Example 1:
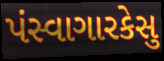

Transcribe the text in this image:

પંસ્વાગારકેસુ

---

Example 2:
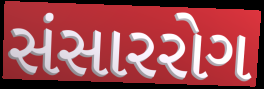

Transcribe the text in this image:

સંસારરોગ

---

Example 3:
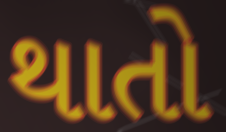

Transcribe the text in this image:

થાતો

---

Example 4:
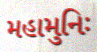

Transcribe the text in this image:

મહામુનિઃ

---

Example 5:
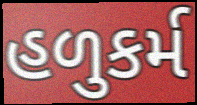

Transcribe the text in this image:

હળુકર્મ